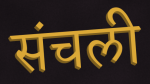
संचली